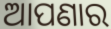
ଆପଣାର